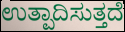
ಉತ್ಪಾದಿಸುತ್ತದೆ